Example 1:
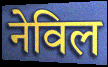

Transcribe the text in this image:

नेविल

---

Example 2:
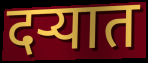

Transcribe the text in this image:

दऱ्यात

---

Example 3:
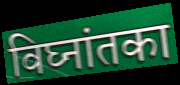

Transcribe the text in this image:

विघ्नांतका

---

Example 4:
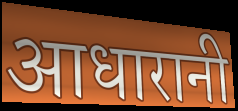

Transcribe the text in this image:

आधारानी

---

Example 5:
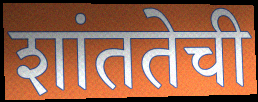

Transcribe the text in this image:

शांततेची